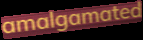
amalgamated